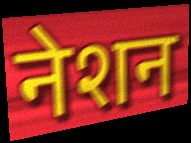
नेशन